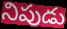
నిపుడు